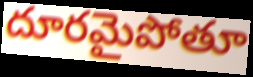
దూరమైపోతూ